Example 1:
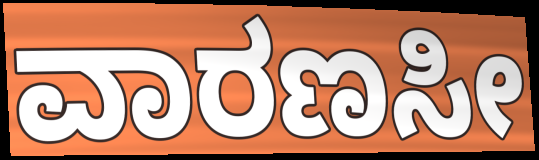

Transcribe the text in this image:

ವಾರಣಸೀ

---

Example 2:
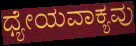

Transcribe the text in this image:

ಧ್ಯೇಯವಾಕ್ಯವು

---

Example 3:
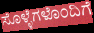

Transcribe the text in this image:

ಸೊಳ್ಳೆಗಳೊಂದಿಗೆ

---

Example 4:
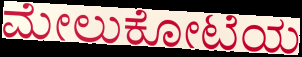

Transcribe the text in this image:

ಮೇಲುಕೋಟೆಯ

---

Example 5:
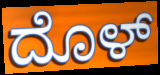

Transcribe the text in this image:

ದೊಳ್